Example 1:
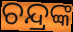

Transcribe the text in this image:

ଚନ୍ଦ୍ରଙ୍କ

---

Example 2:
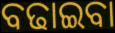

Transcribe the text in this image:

ବଢାଇବା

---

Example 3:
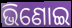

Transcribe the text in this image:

ଭିଣୋଇ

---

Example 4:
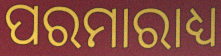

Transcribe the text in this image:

ପରମାରାଧ୍ୟ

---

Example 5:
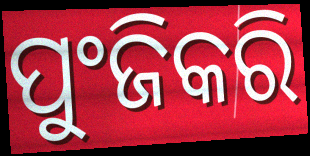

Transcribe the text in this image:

ପୁଂଜିକରି